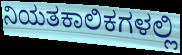
ನಿಯತಕಾಲಿಕಗಳಲ್ಲಿ